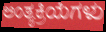
ಅಂತ್ಯಕ್ರಿಯೆಗಳು